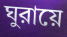
ঘুরায়ে